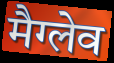
मैग्लेव